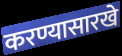
करण्यासारखे